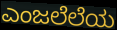
ಎಂಜಲೆಲೆಯ